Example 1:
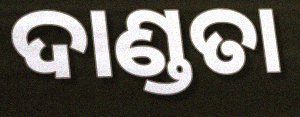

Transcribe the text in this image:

ଦାଣ୍ଡତା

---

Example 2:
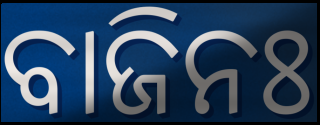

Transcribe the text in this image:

ବାଜିନଃ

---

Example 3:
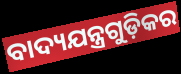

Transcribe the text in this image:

ବାଦ୍ୟଯନ୍ତ୍ରଗୁଡ଼ିକର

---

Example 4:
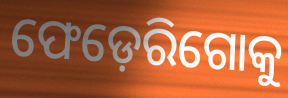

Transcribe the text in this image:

ଫେଡ଼େରିଗୋକୁ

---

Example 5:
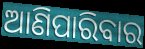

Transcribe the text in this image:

ଆଣିପାରିବାର